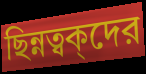
ছিন্নত্বক্দের